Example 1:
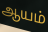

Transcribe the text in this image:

ஆயம்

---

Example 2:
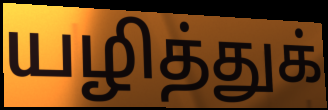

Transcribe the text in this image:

யழித்துக்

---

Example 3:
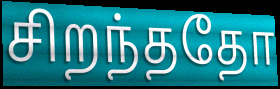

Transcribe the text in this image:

சிறந்ததோ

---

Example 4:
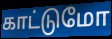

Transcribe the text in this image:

காட்டுமோ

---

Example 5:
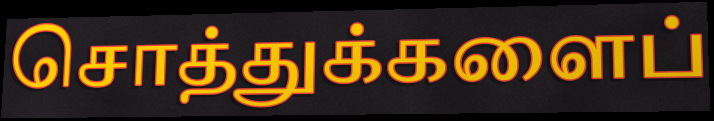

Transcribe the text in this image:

சொத்துக்களைப்